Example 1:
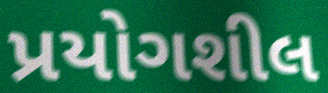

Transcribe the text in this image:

પ્રયોગશીલ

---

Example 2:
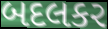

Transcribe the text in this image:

બદલકર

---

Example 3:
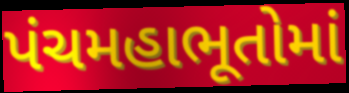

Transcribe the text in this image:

પંચમહાભૂતોમાં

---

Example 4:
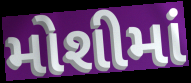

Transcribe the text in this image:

મોશીમાં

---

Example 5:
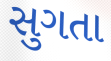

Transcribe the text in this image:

સુગતા